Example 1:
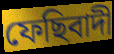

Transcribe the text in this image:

ফেছিবাদী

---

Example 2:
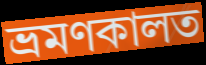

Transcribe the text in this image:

ভ্ৰমণকালত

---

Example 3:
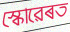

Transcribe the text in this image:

স্কোৱেৰত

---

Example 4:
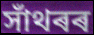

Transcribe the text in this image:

সাঁথৰৰ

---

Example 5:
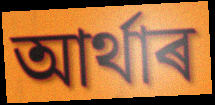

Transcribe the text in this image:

আৰ্থাৰ